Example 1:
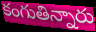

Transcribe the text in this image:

కంగుతిన్నారు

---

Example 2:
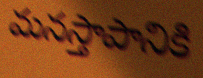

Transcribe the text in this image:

మనస్తాపానికి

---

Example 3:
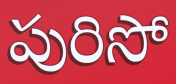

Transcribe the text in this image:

పురిసో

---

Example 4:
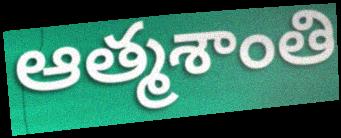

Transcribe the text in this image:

ఆత్మశాంతి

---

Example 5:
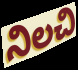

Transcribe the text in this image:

నిలచి